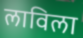
लाविला